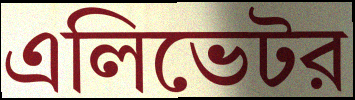
এলিভেটর